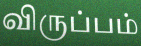
விருப்பம்